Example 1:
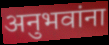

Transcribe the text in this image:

अनुभवांना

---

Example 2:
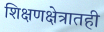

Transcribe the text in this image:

शिक्षणक्षेत्रातही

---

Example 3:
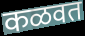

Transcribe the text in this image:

कळवत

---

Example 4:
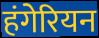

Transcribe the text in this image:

हंगेरियन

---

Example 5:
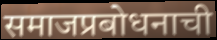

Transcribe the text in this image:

समाजप्रबोधनाची